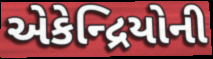
એકેન્દ્રિયોની